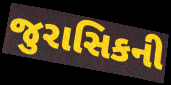
જુરાસિકની